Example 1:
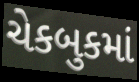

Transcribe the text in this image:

ચેકબુકમાં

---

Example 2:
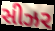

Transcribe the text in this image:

સીઝર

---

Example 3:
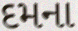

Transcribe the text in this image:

દમના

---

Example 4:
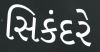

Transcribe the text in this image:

સિકંદરે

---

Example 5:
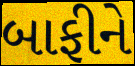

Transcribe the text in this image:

બાફીને